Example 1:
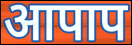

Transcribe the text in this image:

आपाप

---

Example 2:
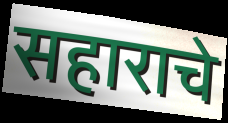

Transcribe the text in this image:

सहाराचे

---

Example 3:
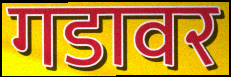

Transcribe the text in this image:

गडावर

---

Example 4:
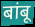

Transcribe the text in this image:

बांबू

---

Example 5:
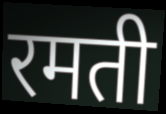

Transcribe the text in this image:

रमती